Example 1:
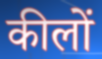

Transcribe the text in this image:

कीलों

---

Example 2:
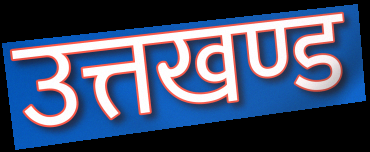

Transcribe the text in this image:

उत्तखण्ड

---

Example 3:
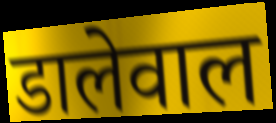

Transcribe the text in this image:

डालेवाल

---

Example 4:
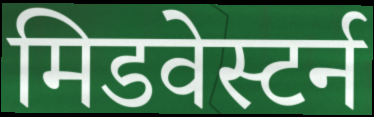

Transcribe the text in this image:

मिडवेस्टर्न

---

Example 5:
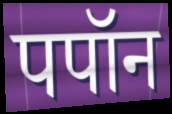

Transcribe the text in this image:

पपॉन